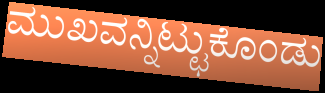
ಮುಖವನ್ನಿಟ್ಟುಕೊಂಡು